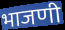
भाजणी